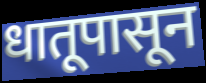
धातूपासून